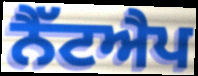
ਨੈੱਟਐਪ